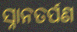
ସ୍ନାନତର୍ପଣ